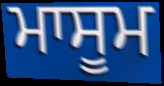
ਮਾਸੂਮ